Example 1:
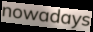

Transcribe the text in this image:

nowadays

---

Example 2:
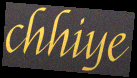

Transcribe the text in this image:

chhiye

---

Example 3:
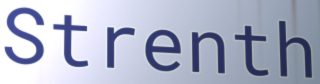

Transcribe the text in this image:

Strenth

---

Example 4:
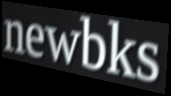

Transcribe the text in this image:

newbks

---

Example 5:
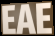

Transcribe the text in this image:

EAE